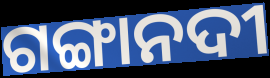
ଗଙ୍ଗାନଦୀ